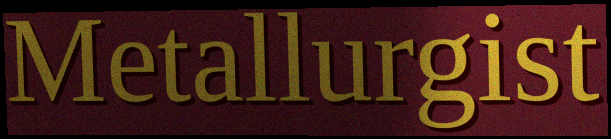
Metallurgist